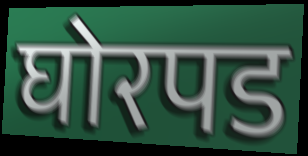
घोरपड